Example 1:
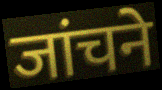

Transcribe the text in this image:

जांचने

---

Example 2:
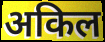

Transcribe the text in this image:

अकिल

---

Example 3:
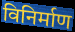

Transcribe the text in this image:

विनिर्माण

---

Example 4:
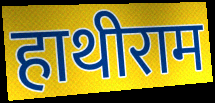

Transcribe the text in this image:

हाथीराम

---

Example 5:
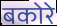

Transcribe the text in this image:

बकोरे